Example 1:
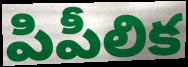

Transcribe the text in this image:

పిపీలిక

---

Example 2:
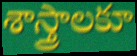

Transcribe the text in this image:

శాస్త్రాలకూ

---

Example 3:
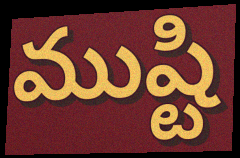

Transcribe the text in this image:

ముష్టి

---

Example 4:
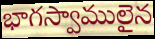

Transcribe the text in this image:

భాగస్వాములైన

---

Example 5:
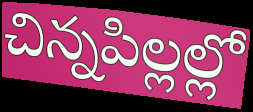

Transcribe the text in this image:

చిన్నపిల్లల్లో